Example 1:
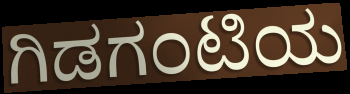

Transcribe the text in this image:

ಗಿಡಗಂಟಿಯ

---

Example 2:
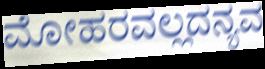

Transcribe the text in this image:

ಮೋಹರವಲ್ಲದನ್ಯವ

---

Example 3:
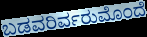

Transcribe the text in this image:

ಬಡವರಿರ್ವರುಮೊಂದೆ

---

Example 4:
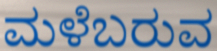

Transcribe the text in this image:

ಮಳೆಬರುವ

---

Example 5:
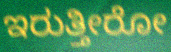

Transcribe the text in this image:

ಇರುತ್ತೀರೋ